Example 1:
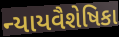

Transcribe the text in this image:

ન્યાયવૈશેષિકા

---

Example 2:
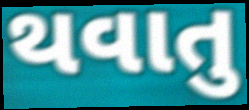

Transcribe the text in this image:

થવાતુ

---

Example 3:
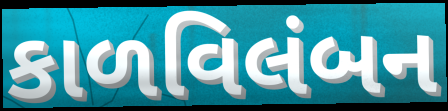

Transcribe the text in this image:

કાળવિલંબન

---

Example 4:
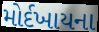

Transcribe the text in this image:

મોર્દખાયના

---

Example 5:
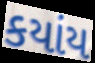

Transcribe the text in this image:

કયાંય